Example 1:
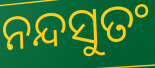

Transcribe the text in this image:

ନନ୍ଦସୁତଂ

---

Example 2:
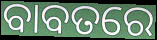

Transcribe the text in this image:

ବାବତରେ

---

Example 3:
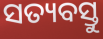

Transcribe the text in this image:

ସତ୍ୟବସ୍ତୁ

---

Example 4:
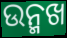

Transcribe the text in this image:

ଉନ୍ମଖ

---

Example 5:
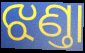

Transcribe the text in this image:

ଝଣ୍ତା